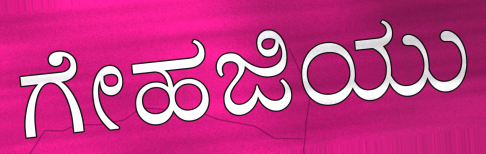
ಗೇಹಜಿಯು